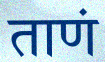
ताणं